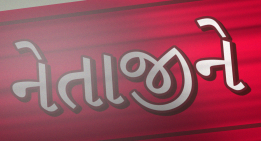
નેતાજીને